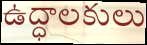
ఉద్ధాలకులు